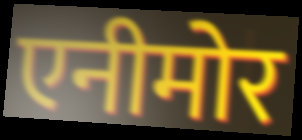
एनीमोर